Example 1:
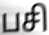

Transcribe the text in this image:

பசி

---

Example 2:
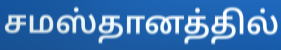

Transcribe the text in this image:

சமஸ்தானத்தில்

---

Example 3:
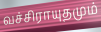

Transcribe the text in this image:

வச்சிராயுதமும்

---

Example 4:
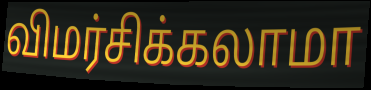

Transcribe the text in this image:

விமர்சிக்கலாமா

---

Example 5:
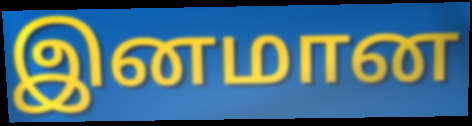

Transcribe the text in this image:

இனமான